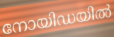
നോയിഡയിൽ